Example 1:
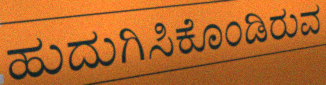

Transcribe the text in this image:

ಹುದುಗಿಸಿಕೊಂಡಿರುವ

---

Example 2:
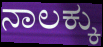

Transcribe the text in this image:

ನಾಲಕ್ಕು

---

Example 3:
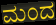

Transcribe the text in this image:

ಮಂದ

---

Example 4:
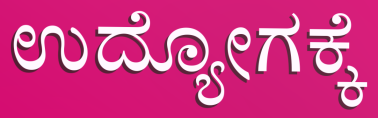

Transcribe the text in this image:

ಉದ್ಯೋಗಕ್ಕೆ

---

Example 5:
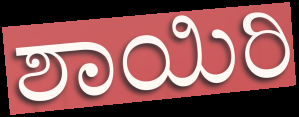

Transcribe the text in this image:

ಶಾಯಿರಿ